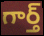
గార్త్